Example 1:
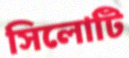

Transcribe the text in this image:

সিলোটি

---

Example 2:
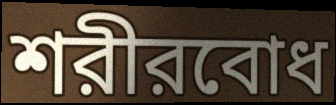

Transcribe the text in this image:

শরীরবোধ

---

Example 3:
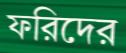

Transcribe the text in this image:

ফরিদের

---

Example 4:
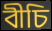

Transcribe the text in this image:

বীচি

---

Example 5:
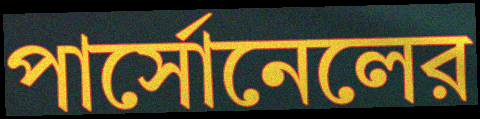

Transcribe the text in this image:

পার্সোনেলের